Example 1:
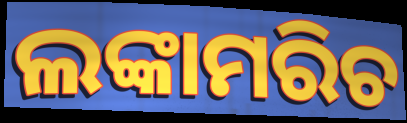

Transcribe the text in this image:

ଲଙ୍କାମରିଚ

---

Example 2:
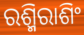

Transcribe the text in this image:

ରଶ୍ମିରାଶିଂ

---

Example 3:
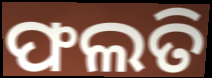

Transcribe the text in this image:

ଫଲତି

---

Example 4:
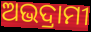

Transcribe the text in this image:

ଅଭଦ୍ରାମୀ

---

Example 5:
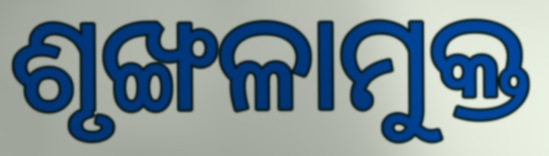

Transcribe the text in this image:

ଶୃଙ୍ଖଳାମୁକ୍ତ